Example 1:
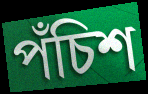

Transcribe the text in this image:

পঁচিশ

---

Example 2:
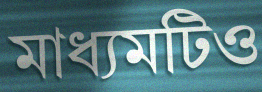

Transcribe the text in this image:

মাধ্যমটিও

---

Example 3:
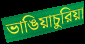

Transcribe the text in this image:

ভাঙিয়াচুরিয়া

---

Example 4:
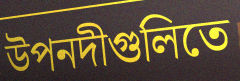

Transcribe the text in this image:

উপনদীগুলিতে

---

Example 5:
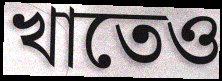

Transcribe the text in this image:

খাতেও